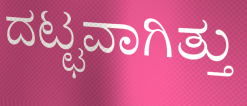
ದಟ್ಟವಾಗಿತ್ತು